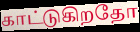
காட்டுகிறதோ